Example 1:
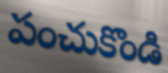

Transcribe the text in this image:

పంచుకొండి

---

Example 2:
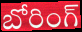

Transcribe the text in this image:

బోరింగ్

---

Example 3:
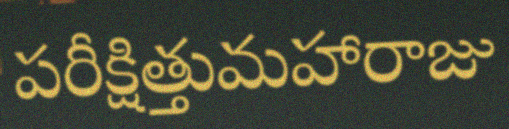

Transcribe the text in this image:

పరీక్షిత్తుమహారాజు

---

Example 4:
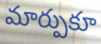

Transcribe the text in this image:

మార్పుకూ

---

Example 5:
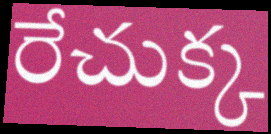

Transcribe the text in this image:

రేచుక్క